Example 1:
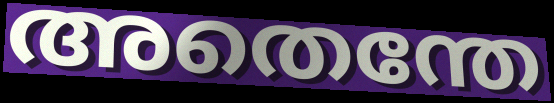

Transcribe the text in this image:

അതെന്തേ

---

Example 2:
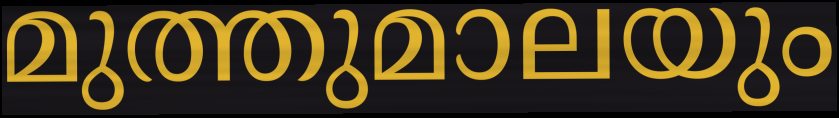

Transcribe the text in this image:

മുത്തുമാലയും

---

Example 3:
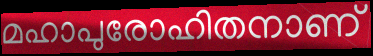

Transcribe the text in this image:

മഹാപുരോഹിതനാണ്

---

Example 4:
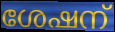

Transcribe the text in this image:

ശേഷന്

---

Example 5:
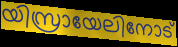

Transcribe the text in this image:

യിസ്രായേലിനോട്